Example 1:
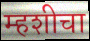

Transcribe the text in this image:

म्हशीचा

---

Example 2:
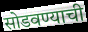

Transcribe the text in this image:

सोडवण्याची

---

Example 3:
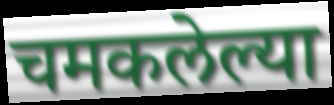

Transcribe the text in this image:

चमकलेल्या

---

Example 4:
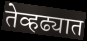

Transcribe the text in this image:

तेव्हढ्यात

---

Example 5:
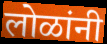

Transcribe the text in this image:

लोळांनी